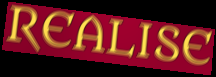
REALISE